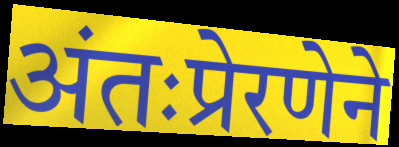
अंतःप्रेरणेने